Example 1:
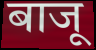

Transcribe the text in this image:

बाजू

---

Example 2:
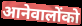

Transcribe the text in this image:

आनेवालोंको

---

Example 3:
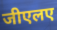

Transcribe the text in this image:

जीएलए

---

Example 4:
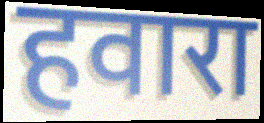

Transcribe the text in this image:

हवारा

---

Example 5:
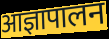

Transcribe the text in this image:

आज्ञापालन